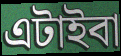
এটাইবা